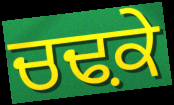
ਚਢ਼ਕੇ